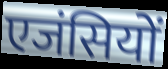
एजंसियों